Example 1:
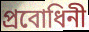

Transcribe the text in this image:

প্রবোধিনী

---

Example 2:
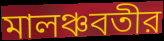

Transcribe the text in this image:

মালঞ্চবতীর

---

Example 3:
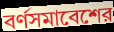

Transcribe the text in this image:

বর্ণসমাবেশের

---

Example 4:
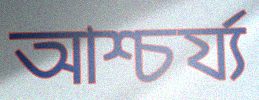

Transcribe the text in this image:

আশ্চর্য্য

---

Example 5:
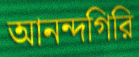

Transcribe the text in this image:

আনন্দগিরি